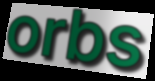
orbs